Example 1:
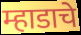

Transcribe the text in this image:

म्हाडाचे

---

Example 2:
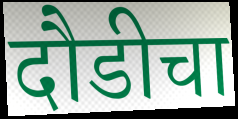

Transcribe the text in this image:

दौडीचा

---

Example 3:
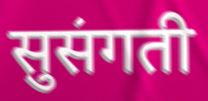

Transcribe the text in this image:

सुसंगती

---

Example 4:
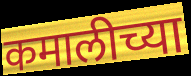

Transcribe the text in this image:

कमालीच्या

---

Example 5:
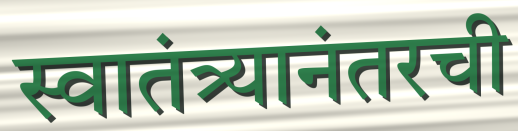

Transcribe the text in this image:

स्वातंत्र्यानंतरची